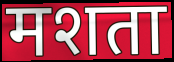
मशता